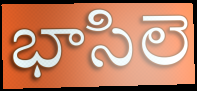
భాసిలె